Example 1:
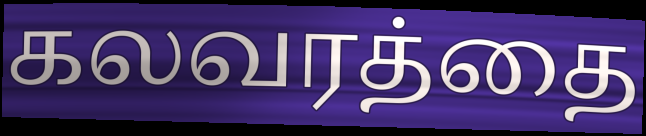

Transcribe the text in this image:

கலவரத்தை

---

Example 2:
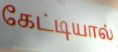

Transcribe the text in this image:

கேட்டியால்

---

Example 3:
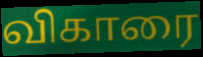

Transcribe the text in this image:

விகாரை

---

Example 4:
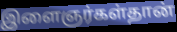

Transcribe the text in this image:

இளைஞர்கள்தான்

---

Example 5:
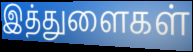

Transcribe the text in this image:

இத்துளைகள்